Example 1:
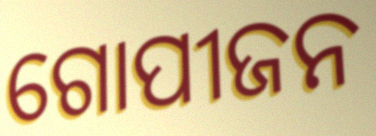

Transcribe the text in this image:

ଗୋପୀଜନ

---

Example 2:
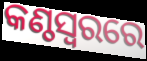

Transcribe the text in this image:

କଣ୍ଠସ୍ୱରରେ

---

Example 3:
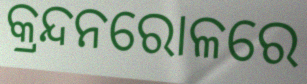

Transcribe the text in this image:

କ୍ରନ୍ଦନରୋଳରେ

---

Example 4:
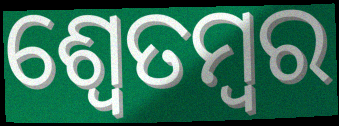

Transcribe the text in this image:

ଶ୍ଵେତମ୍ବର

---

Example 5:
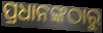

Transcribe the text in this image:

ପ୍ରଧାନଙ୍କଠାରୁ